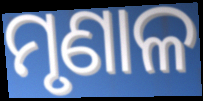
ମୃଣାଳ